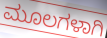
ಮೂಲಗಳಾಗಿ